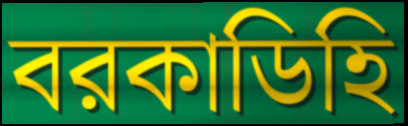
বরকাডিহি